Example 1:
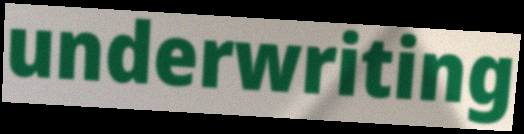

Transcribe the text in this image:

underwriting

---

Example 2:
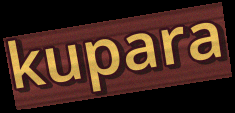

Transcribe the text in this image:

kupara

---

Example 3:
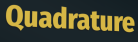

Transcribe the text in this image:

Quadrature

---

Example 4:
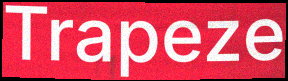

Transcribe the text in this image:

Trapeze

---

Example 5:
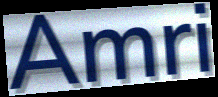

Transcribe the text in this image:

Amri